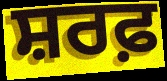
ਸ਼ਰਫ਼